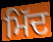
ਮਿੱਦ